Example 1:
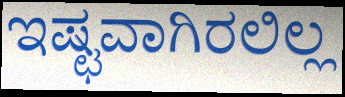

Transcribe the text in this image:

ಇಷ್ಟವಾಗಿರಲಿಲ್ಲ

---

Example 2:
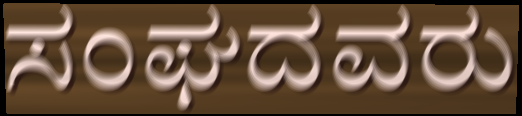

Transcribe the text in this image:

ಸಂಘದವರು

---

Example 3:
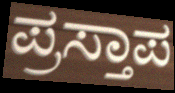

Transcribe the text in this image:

ಪ್ರಸ್ತಾಪ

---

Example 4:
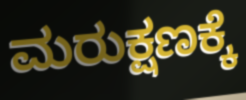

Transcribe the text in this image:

ಮರುಕ್ಷಣಕ್ಕೆ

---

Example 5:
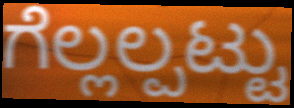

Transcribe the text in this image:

ಗೆಲ್ಲಲ್ಪಟ್ಟು